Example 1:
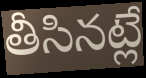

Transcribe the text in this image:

తీసినట్లే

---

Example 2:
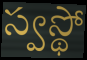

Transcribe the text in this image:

స్వస్థో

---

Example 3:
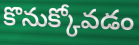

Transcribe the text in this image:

కొనుక్కోవడం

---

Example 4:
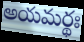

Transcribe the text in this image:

అయమర్థః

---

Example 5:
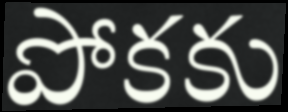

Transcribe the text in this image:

పోకకు